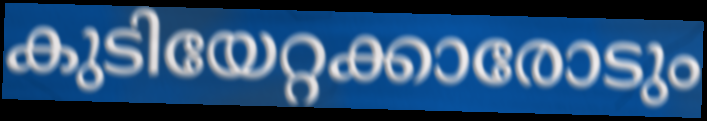
കുടിയേറ്റക്കാരോടും